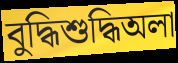
বুদ্ধিশুদ্ধিঅলা